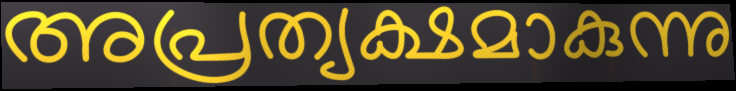
അപ്രത്യക്ഷമാകുന്നു